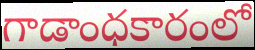
గాడాంధకారంలో